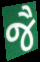
જૈ